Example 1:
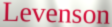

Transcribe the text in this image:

Levenson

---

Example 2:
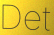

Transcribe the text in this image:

Det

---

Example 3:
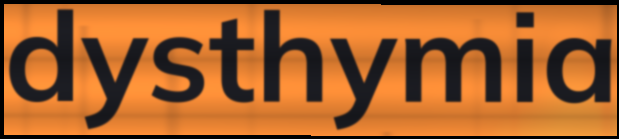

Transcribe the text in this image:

dysthymia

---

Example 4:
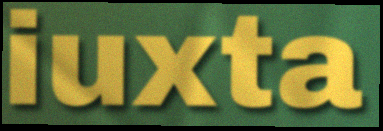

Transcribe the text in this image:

iuxta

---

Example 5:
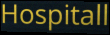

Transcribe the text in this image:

Hospitall